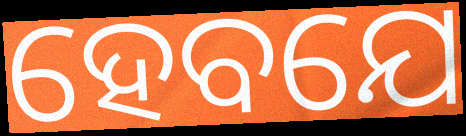
ହେବଯେ